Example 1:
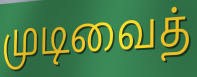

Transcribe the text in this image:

முடிவைத்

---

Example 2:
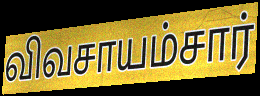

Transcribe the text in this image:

விவசாயம்சார்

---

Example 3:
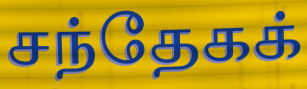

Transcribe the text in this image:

சந்தேகக்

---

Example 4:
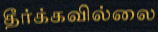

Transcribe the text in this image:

தீர்க்கவில்லை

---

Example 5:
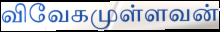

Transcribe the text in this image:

விவேகமுள்ளவன்